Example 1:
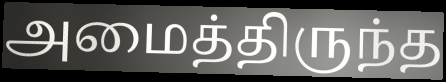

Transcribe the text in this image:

அமைத்திருந்த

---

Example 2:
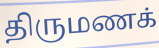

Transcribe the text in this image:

திருமணக்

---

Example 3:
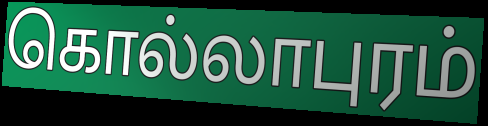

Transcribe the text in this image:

கொல்லாபுரம்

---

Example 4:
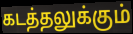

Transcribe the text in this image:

கடத்தலுக்கும்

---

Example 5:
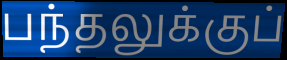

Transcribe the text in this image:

பந்தலுக்குப்